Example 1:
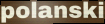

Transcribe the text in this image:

polanski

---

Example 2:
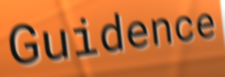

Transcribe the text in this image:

Guidence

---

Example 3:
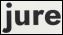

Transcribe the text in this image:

jure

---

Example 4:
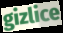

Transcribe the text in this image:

gizlice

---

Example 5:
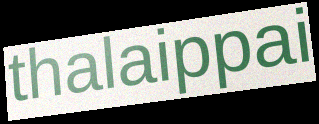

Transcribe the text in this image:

thalaippai